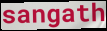
sangath